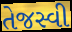
તેજસ્વી